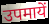
उपमायें